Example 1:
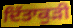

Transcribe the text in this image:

ਦਿੱਤਾਕੁੜੀ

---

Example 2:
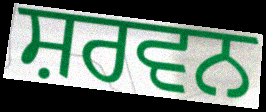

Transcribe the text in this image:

ਸ਼ਰਵਨ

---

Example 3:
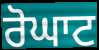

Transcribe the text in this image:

ਰੋਘਾਟ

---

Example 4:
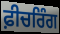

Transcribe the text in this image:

ਫ਼ੀਚਰਿੰਗ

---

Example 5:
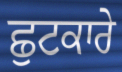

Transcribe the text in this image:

ਛੁਟਕਾਰੇ